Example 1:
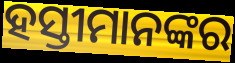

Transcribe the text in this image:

ହସ୍ତୀମାନଙ୍କର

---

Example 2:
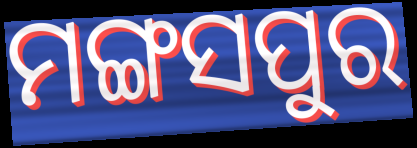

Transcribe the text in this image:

ମଙ୍ଗସପୁର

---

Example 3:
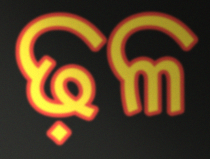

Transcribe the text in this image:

ଢ଼ଳ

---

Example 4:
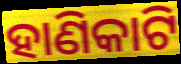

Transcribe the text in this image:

ହାଣିକାଟି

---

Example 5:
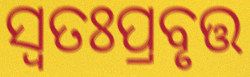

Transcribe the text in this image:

ସ୍ବତଃପ୍ରବୃତ୍ତ